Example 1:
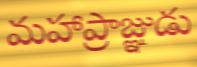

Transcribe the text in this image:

మహాప్రాజ్ఞుడు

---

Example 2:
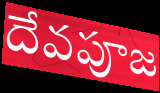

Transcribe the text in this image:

దేవపూజ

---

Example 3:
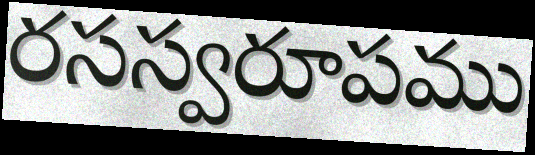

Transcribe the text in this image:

రసస్వరూపము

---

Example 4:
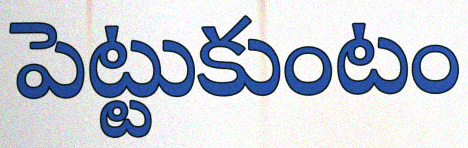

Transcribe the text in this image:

పెట్టుకుంటం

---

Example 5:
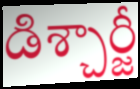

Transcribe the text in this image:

డిశ్చార్జీ